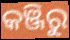
କଞ୍ଜିରୁ